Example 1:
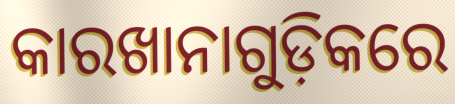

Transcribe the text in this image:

କାରଖାନାଗୁଡ଼ିକରେ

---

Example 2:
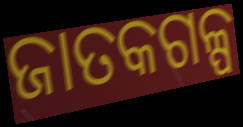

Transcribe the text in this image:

ଜାତକଗଳ୍ପ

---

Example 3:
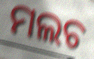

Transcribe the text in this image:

ମଲଚ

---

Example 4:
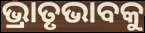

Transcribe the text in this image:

ଭ୍ରାତୃଭାବକୁ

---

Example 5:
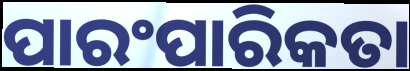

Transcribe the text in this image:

ପାରଂପାରିକତା